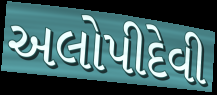
અલોપીદેવી